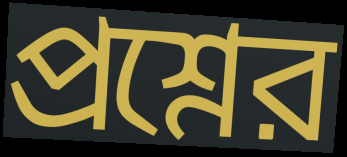
প্রশ্নের